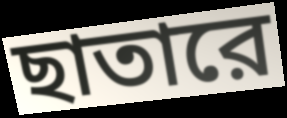
ছাতারে